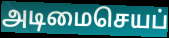
அடிமைசெயப்